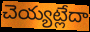
చెయ్యట్లేదా